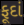
ફૂદાં